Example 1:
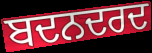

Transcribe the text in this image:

ਬਦਨਦਰਦ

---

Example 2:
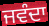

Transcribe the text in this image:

ਜਵੰਦਾ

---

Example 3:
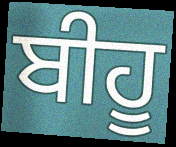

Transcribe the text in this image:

ਬੀਹੂ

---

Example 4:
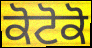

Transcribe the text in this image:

ਕੋਟੋਕੋ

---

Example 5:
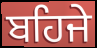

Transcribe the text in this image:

ਬਹਿਜੇ